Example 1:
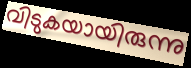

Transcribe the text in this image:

വിടുകയായിരുന്നു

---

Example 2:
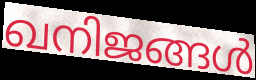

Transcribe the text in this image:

ഖനിജങ്ങൾ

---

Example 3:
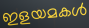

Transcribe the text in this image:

ഇളയമകൾ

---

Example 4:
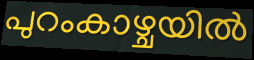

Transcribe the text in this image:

പുറംകാഴ്ചയിൽ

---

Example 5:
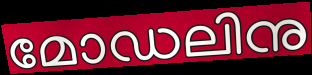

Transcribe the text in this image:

മോഡലിനു